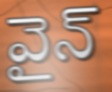
వైన్